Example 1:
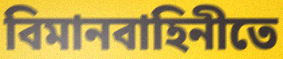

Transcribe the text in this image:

বিমানবাহিনীতে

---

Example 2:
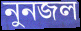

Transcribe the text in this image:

নুনজল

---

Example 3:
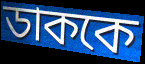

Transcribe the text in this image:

ডাককে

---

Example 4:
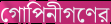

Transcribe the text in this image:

গোপিনীগণের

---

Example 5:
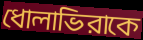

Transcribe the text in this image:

ধোলাভিরাকে